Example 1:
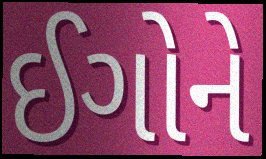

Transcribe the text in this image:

ઈગોને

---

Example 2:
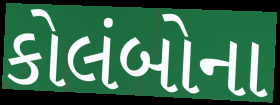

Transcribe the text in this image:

કોલંબોના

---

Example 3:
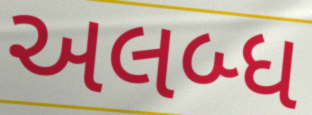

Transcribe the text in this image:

અલબ્ધ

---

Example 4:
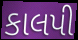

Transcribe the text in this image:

કાલપી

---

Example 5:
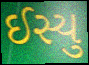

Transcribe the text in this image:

ઈસ્યુ